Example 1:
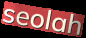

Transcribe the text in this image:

seolah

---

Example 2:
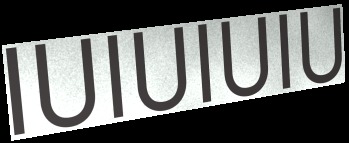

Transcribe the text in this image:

IUIUIUIU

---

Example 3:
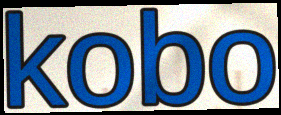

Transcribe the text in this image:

kobo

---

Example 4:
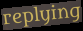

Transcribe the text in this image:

replying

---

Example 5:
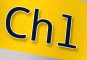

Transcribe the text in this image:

Chl